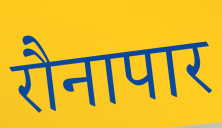
रौनापार